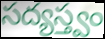
సద్యస్త్వం